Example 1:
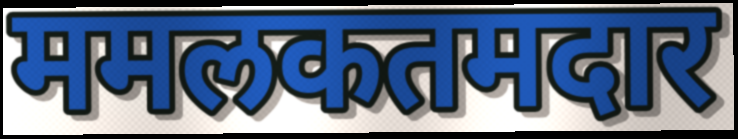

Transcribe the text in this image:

ममलकतमदार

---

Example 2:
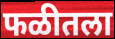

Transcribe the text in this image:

फळीतला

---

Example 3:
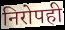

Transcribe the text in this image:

निरोपही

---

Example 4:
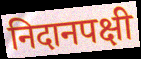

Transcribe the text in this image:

निदानपक्षी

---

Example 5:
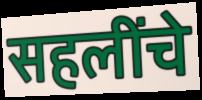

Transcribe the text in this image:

सहलींचे